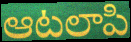
ఆటలాపి